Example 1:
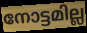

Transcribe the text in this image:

നോട്ടമില്ല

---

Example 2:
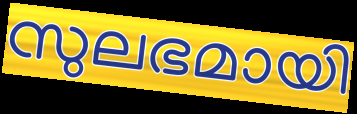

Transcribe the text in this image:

സുലഭമായി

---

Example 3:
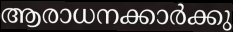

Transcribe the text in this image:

ആരാധനക്കാർക്കു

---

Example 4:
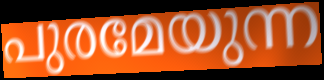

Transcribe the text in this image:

പുരമേയുന്ന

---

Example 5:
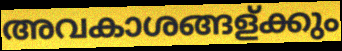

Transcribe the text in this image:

അവകാശങ്ങള്ക്കും